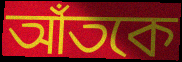
আঁতকে